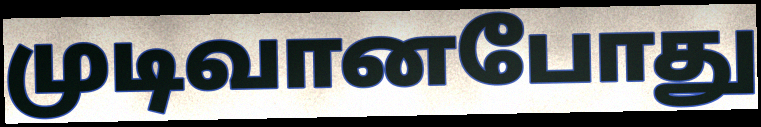
முடிவானபோது